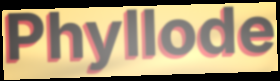
Phyllode